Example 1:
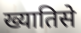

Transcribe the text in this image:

ख्यातिसे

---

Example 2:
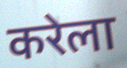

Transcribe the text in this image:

करेला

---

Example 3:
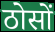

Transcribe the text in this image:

ठोसों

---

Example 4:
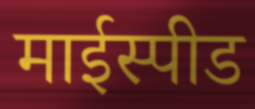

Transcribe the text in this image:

माईस्पीड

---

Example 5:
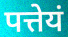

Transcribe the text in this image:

पत्तेयं